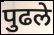
पुढले